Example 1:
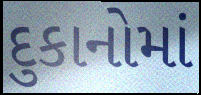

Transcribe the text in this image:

દુકાનોમાં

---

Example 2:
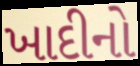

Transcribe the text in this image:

ખાદીનો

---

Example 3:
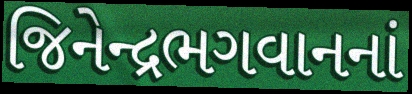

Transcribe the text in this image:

જિનેન્દ્રભગવાનનાં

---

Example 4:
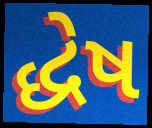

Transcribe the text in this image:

દ્ધેષ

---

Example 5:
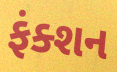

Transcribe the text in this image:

ફંક્શન